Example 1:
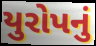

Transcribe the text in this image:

યુરોપનું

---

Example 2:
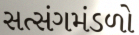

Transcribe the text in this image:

સત્સંગમંડળો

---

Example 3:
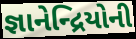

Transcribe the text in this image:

જ્ઞાનેન્દ્રિયોની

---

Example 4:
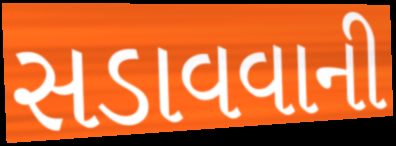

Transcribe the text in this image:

સડાવવાની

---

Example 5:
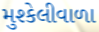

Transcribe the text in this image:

મુશ્કેલીવાળા